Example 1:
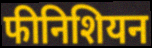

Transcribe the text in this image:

फीनिशियन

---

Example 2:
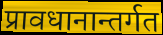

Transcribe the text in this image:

प्रावधानान्तर्गत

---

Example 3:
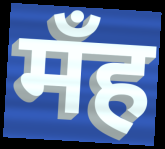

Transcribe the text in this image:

मँह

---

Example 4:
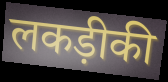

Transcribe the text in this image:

लकड़ीकी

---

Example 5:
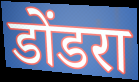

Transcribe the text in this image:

डोंडरा